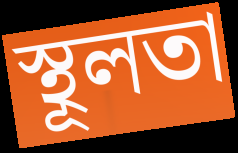
স্থূলতা